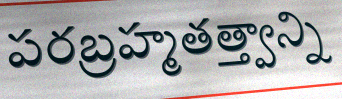
పరబ్రహ్మతత్త్వాన్ని